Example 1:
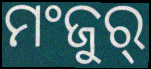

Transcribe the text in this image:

ମଂଜୁର୍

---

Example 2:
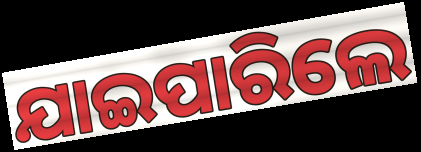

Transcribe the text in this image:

ଯାଇପାରିଲେ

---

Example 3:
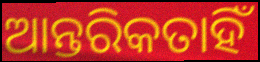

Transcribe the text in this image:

ଆନ୍ତରିକତାହିଁ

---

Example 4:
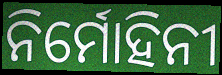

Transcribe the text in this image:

ନିର୍ମୋହିନୀ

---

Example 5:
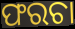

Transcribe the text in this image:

ଫରଚା